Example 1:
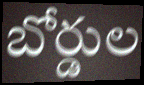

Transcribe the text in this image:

బోర్డుల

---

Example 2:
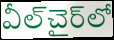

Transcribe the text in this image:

వీల్‌చైర్‌లో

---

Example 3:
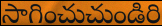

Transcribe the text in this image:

సాగించుచుండిరి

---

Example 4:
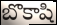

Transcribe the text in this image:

బొకాషి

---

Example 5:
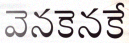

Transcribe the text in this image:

వెనకెనకే